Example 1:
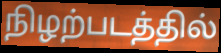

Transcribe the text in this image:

நிழற்படத்தில்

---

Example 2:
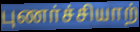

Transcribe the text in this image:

புணர்ச்சியாற்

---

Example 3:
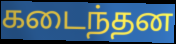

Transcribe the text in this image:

கடைந்தன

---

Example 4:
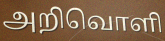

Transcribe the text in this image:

அறிவொளி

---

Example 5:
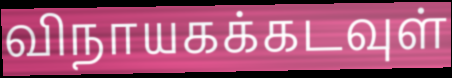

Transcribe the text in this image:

விநாயகக்கடவுள்